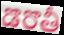
డొరొతీ